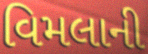
વિમલાની